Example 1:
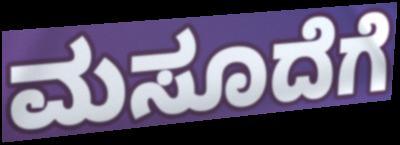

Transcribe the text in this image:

ಮಸೂದೆಗೆ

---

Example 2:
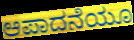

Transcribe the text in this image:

ಆಪಾದನೆಯೂ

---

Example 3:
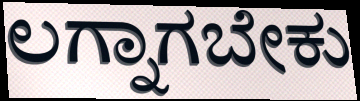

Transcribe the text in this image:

ಲಗ್ನಾಗಬೇಕು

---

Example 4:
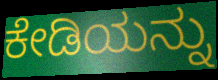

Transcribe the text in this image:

ಕೇಡಿಯನ್ನು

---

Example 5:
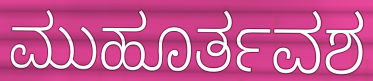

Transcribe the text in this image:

ಮುಹೂರ್ತವಶ